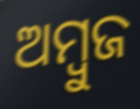
ଅମ୍ବୁଜ